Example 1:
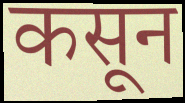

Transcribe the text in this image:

कसून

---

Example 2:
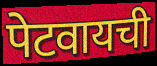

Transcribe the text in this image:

पेटवायची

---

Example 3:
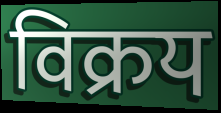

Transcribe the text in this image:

विक्रय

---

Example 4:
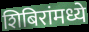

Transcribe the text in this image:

शिबिरांमध्ये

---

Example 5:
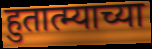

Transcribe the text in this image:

हुतात्म्याच्या